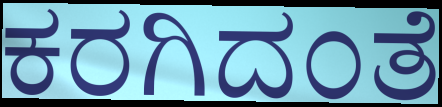
ಕರಗಿದಂತೆ